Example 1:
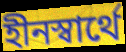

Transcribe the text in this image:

হীনস্বার্থে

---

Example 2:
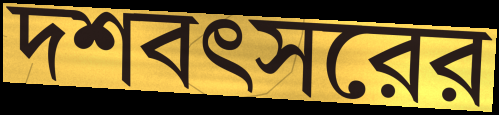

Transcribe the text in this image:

দশবৎসরের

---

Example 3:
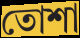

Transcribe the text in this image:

তোশা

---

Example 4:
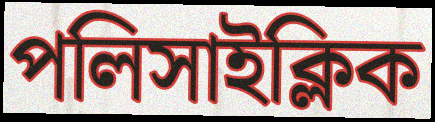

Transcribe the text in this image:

পলিসাইক্লিক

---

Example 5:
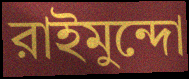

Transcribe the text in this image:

রাইমুন্দো